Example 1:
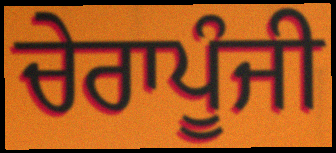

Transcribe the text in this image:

ਚੇਰਾਪੂੰਜੀ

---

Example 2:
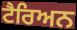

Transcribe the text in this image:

ਟੈਰਿਅਨ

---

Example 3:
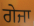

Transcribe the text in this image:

ਗੇਜਾ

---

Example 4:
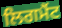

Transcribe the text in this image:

ਲਿਗਮੈਂਟ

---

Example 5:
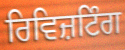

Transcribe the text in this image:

ਰਿਵਿਜ਼ਟਿੰਗ